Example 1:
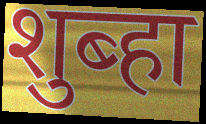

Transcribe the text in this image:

शुब्हा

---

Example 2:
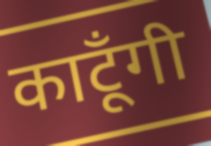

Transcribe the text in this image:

काटूँगी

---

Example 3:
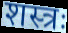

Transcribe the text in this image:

शस्त्रः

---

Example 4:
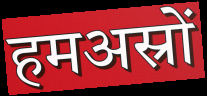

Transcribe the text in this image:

हमअस्रों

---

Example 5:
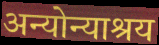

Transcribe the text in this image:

अन्योन्याश्रय